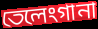
তেলেংগানা